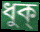
ধুক্